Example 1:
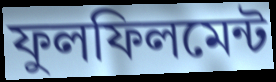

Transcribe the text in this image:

ফুলফিলমেন্ট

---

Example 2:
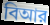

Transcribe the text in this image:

বিআর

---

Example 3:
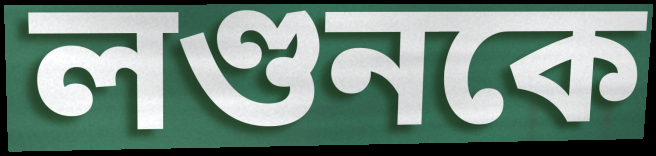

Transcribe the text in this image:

লণ্ডনকে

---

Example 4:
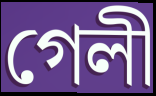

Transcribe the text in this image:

গেলী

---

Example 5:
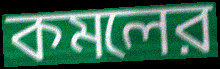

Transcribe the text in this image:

কমলের